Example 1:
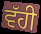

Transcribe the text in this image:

ਵੱਹੀ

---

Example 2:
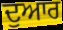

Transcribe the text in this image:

ਦੁਆਰ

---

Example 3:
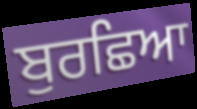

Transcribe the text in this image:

ਬੁਰਛਿਆ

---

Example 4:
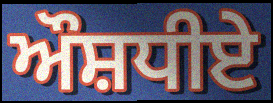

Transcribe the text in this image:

ਔਸ਼ਧੀਏ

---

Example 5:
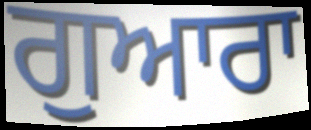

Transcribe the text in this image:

ਗੁਆਰਾ